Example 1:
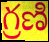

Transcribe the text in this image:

గ్రణి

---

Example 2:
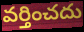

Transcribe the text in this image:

వర్తించదు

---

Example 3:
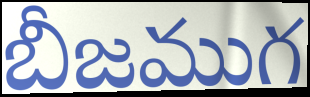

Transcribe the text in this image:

బీజముగ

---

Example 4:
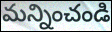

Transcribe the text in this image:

మన్నించండి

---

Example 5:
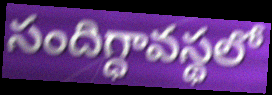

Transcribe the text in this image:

సందిగ్ధావస్థలో